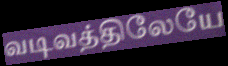
வடிவத்திலேயே